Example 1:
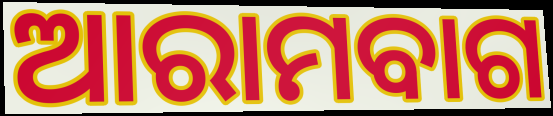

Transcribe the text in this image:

ଆରାମବାଗ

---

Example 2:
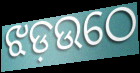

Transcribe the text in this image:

ଝଡ଼ଉଠେ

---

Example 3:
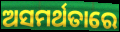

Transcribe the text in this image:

ଅସମର୍ଥତାରେ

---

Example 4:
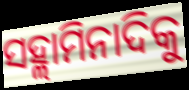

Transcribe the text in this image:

ସହ୍ଲାମିନାଦିକୁ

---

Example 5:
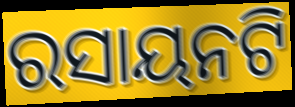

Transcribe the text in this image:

ରସାୟନଟି